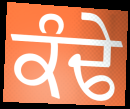
ਕੰਢੇ